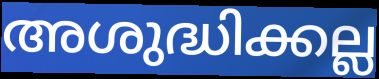
അശുദ്ധിക്കല്ല